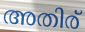
അതിര്